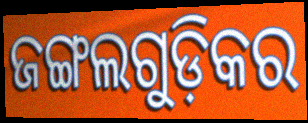
ଜଙ୍ଗଲଗୁଡ଼ିକର